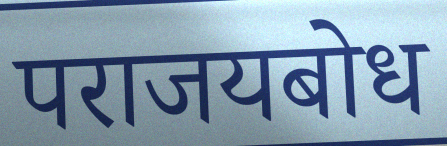
पराजयबोध